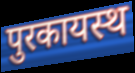
पुरकायस्थ